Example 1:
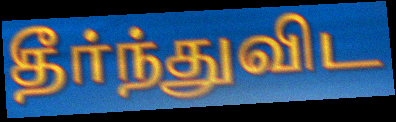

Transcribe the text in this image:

தீர்ந்துவிட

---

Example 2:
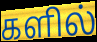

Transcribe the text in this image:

களில்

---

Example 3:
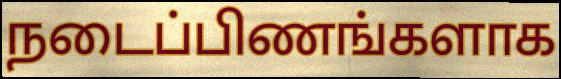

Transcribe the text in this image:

நடைப்பிணங்களாக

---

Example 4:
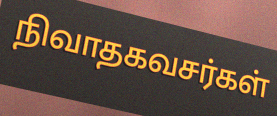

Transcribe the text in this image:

நிவாதகவசர்கள்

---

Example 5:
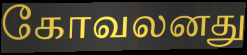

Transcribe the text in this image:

கோவலனது